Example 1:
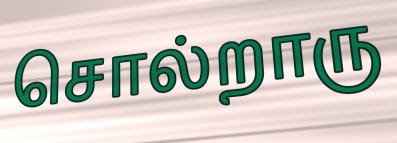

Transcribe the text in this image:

சொல்றாரு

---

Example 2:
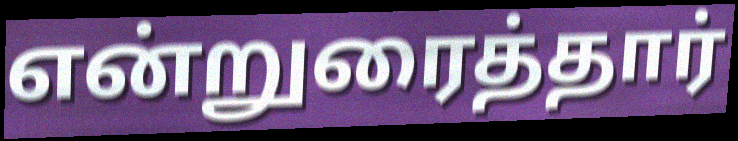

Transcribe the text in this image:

என்றுரைத்தார்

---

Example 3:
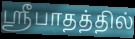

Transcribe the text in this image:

ஸ்ரீபாதத்தில்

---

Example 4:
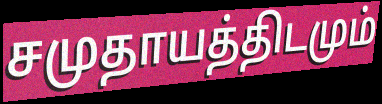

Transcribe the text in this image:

சமுதாயத்திடமும்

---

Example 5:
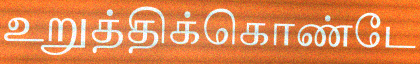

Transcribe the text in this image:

உறுத்திக்கொண்டே